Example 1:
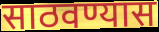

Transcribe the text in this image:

साठवण्यास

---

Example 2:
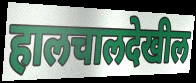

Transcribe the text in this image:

हालचालदेखील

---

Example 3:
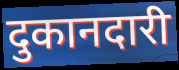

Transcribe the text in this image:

दुकानदारी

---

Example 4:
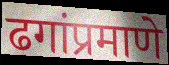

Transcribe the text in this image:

ढगांप्रमाणे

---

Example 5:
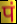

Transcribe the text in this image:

पं